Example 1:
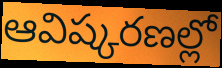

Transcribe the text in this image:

ఆవిష్కరణల్లో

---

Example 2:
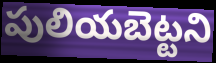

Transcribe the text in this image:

పులియబెట్టని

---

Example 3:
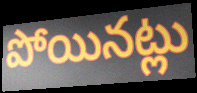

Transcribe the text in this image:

పోయినట్లు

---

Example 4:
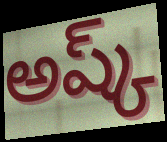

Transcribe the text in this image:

అష్క్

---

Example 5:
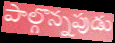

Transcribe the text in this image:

పాల్గొన్నపుడు